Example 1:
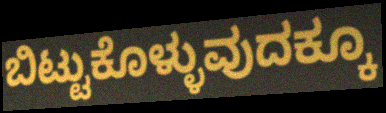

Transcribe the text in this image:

ಬಿಟ್ಟುಕೊಳ್ಳುವುದಕ್ಕೂ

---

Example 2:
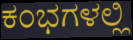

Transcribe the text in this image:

ಕಂಭಗಳಲ್ಲಿ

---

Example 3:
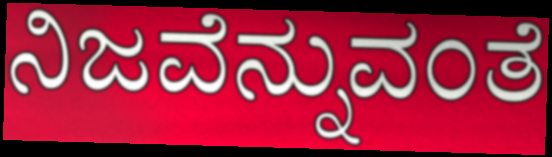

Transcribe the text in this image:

ನಿಜವೆನ್ನುವಂತೆ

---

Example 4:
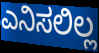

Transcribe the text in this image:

ಎನಿಸಲಿಲ್ಲ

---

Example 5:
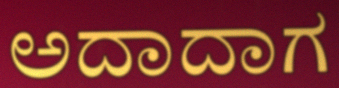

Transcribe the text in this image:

ಅದಾದಾಗ